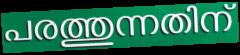
പരത്തുന്നതിന്